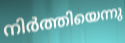
നിർത്തിയെന്നു